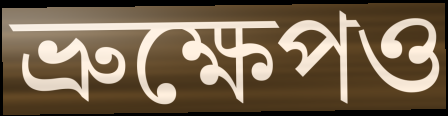
ভ্রুক্ষেপও